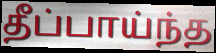
தீப்பாய்ந்த